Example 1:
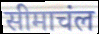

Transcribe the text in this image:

सीमाचंल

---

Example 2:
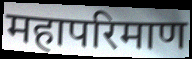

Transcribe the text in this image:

महापरिमाण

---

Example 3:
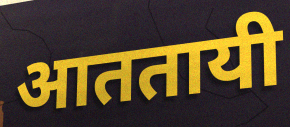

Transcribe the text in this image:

आततायी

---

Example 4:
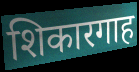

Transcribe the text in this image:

शिकारगाह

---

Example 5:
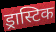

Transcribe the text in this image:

ड्रास्टिक